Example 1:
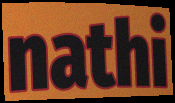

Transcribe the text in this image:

nathi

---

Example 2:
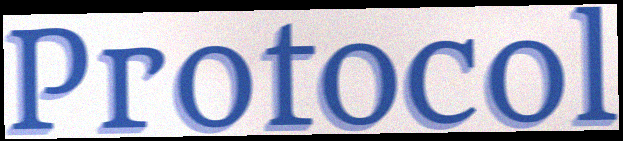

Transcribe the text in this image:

Protocol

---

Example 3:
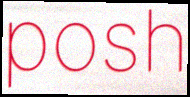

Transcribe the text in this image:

posh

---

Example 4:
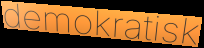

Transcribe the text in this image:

demokratisk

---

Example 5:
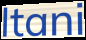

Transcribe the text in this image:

Itani